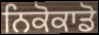
ਨਿਕੋਕਾਡੋ